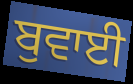
ਬੁਵਾਈ